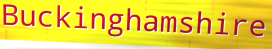
Buckinghamshire